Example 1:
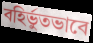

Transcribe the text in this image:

বহির্ভুতভাবে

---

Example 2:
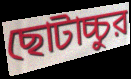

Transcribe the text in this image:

ছোটাচ্চুর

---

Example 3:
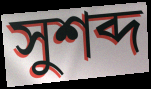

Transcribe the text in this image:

সুশব্দ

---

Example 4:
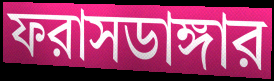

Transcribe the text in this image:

ফরাসডাঙ্গার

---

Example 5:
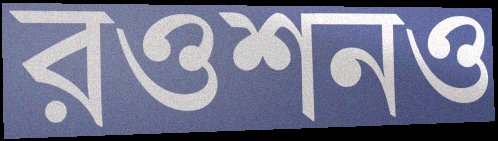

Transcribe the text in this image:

রওশনও